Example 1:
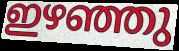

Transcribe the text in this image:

ഇഴഞ്ഞു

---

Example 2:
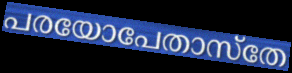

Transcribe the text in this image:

പരയോപേതാസ്തേ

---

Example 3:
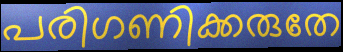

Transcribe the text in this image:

പരിഗണിക്കരുതേ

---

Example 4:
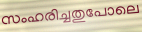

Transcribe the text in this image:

സംഹരിച്ചതുപോലെ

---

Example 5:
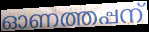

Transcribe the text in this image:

ഓണത്തപ്പന്